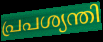
പ്രപശ്യന്തി